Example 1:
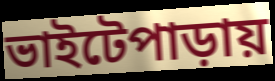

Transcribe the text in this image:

ভাইটেপাড়ায়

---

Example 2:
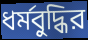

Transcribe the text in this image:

ধর্মবুদ্ধির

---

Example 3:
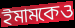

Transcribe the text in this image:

ইমামকেও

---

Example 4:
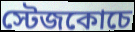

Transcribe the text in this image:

স্টেজকোচে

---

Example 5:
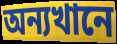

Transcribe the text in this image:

অন্যখানে